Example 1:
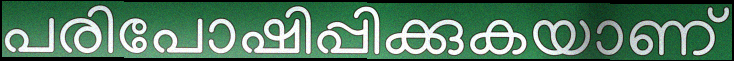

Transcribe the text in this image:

പരിപോഷിപ്പിക്കുകയാണ്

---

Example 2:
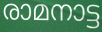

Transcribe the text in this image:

രാമനാട്ട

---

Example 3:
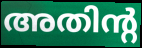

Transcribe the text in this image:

അതിന്റ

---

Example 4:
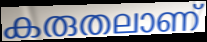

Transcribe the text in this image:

കരുതലാണ്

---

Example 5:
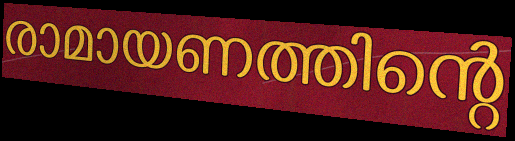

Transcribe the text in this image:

രാമായണത്തിന്റെ